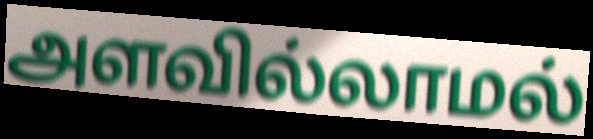
அளவில்லாமல்